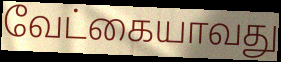
வேட்கையாவது